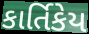
કાર્તિકેય